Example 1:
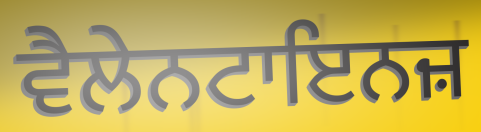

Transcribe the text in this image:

ਵੈਲੇਨਟਾਇਨਜ਼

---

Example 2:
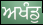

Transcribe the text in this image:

ਅਖੰਡੁ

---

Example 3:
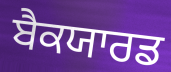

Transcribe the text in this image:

ਬੈਕਯਾਰਡ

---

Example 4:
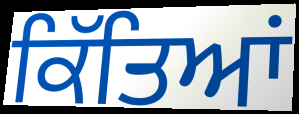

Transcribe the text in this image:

ਕਿੱਤਿਆਂ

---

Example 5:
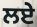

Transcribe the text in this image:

ਲਏ